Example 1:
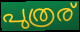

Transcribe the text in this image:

പുത്രര്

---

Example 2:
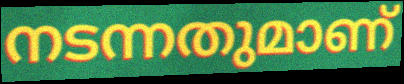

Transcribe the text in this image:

നടന്നതുമാണ്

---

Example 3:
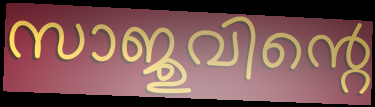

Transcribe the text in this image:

സാജുവിന്റെ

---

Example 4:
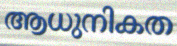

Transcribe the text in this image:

ആധുനികത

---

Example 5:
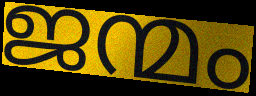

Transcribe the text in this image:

ജന്മം